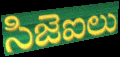
సిజెఐలు